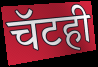
चॅटही